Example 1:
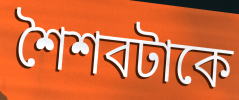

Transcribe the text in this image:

শৈশবটাকে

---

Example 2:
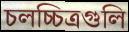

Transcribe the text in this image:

চলচ্চিত্রগুলি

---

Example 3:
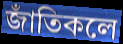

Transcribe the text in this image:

জাঁতিকলে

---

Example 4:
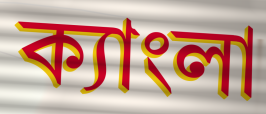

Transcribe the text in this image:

ক্যাংলা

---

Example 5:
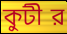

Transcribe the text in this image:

কুটীর